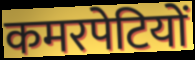
कमरपेटियों